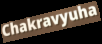
Chakravyuha